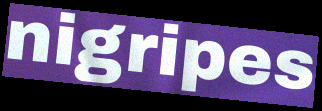
nigripes